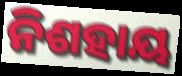
ନିଶହାୟ